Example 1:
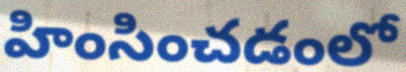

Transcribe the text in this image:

హింసించడంలో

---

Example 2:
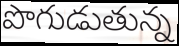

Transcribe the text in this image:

పొగుడుతున్న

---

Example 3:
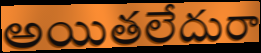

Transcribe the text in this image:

అయితలేదురా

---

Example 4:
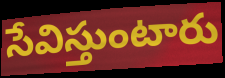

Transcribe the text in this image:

సేవిస్తుంటారు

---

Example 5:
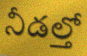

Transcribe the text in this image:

నీడల్తో